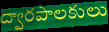
ద్వారపాలకులు